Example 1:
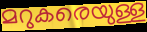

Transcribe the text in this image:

മറുകരെയുള്ള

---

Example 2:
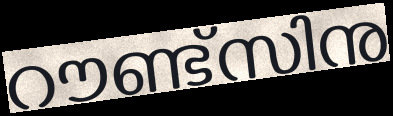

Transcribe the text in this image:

റൗണ്ട്സിനു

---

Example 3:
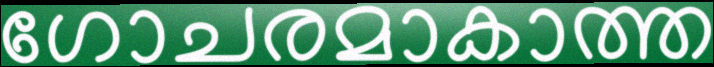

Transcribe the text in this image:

ഗോചരമാകാത്ത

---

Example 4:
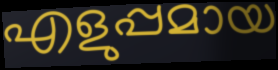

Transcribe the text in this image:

എളുപ്പമായ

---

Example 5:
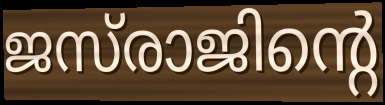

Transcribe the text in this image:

ജസ്‌രാജിന്റെ